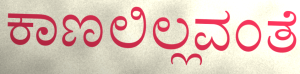
ಕಾಣಲಿಲ್ಲವಂತೆ